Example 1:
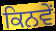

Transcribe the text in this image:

ਕਿਨਵੇਂ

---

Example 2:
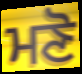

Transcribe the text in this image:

ਮਣੋ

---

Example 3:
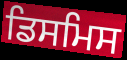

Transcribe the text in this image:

ਡਿਸਮਿਸ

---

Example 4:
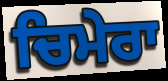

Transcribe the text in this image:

ਚਿਮੇਰਾ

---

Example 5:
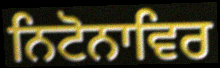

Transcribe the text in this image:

ਨਿਟੋਨਾਵਿਰ